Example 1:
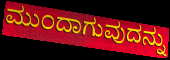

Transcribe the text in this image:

ಮುಂದಾಗುವುದನ್ನು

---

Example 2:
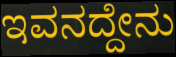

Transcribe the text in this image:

ಇವನದ್ದೇನು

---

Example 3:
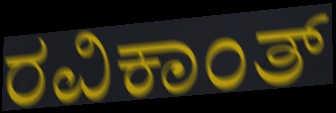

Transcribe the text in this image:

ರವಿಕಾಂತ್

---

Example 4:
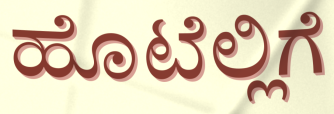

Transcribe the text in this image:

ಹೊಟೆಲ್ಲಿಗೆ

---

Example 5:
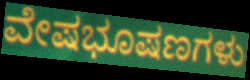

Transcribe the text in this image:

ವೇಷಭೂಷಣಗಳು